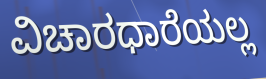
ವಿಚಾರಧಾರೆಯಲ್ಲ